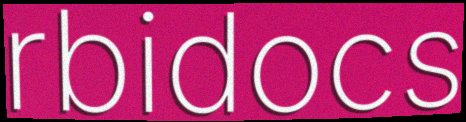
rbidocs